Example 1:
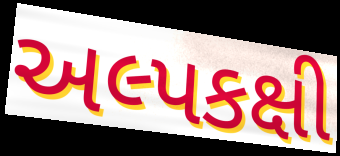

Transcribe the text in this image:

અલ્પકક્ષી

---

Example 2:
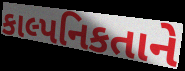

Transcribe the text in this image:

કાલ્પનિકતાને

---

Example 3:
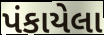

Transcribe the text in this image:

પંકાયેલા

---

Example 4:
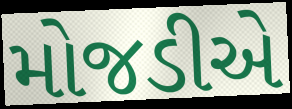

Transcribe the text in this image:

મોજડીએ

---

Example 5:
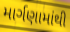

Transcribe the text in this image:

માર્ગણામાંથી